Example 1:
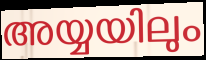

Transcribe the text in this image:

അയ്യയിലും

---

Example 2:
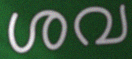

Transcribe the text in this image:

ശവ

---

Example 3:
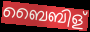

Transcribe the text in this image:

ബൈബിള്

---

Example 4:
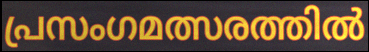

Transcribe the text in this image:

പ്രസംഗമത്സരത്തിൽ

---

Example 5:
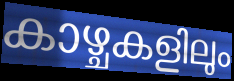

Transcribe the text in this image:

കാഴ്ചകളിലും